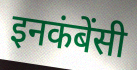
इनकंबेंसी